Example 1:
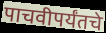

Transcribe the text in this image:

पाचवीपर्यंतचे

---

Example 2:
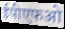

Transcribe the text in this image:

ईपीएफओ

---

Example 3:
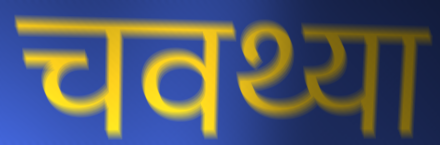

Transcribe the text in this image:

चवथ्या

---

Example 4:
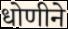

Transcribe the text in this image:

धोणीने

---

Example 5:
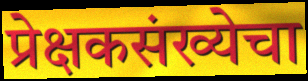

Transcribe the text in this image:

प्रेक्षकसंख्येचा